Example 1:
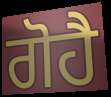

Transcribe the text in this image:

ਗੋਹੈ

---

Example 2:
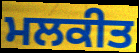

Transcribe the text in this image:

ਮਲਕੀਤ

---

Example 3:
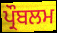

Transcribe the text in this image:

ਪ੍ਰੌਬਲਮ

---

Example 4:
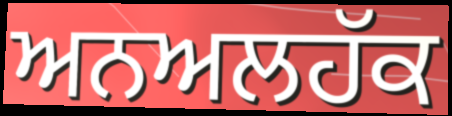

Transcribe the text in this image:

ਅਨਅਲਹੱਕ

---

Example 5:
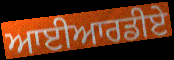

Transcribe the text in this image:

ਆਈਆਰਡੀਏ